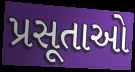
પ્રસૂતાઓ